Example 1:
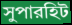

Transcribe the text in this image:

সুপারহিট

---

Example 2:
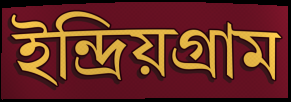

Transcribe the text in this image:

ইন্দ্রিয়গ্রাম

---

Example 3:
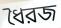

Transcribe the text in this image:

ধৈরজ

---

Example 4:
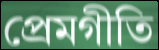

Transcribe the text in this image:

প্রেমগীতি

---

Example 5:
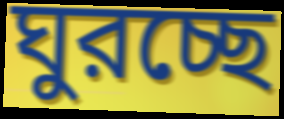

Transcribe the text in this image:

ঘুরচ্ছে